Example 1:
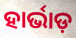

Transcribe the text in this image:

ହାର୍ଭାଡ଼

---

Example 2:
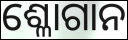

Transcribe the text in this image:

ଶ୍ଳୋଗାନ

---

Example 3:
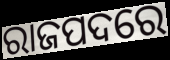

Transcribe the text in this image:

ରାଜପଦରେ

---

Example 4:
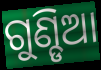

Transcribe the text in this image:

ଗୁଣ୍ଡିଆ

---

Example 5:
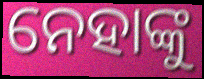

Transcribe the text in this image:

ନେହାଙ୍କୁ